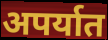
अपर्यात